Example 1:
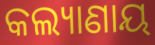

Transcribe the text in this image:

କଲ୍ୟାଣାୟ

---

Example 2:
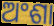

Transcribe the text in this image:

ଅଂଶା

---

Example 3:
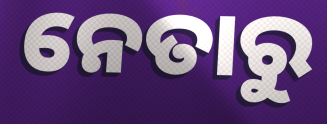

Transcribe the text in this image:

ନେତାରୁ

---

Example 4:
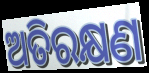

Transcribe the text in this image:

ଅତିରକ୍ଷଣ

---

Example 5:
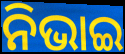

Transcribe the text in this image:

ନିଭାଇ